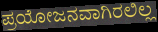
ಪ್ರಯೋಜನವಾಗಿರಲಿಲ್ಲ